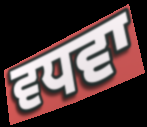
ਵਧਵਾ